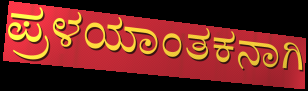
ಪ್ರಳಯಾಂತಕನಾಗಿ